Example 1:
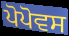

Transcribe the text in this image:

ਪੋਪੋਵਸ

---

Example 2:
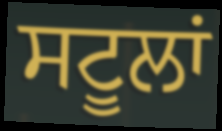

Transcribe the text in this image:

ਸਟੂਲਾਂ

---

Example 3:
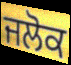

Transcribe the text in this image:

ਜਲੋਕ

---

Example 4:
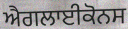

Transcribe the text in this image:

ਐਗਲਾਈਕੋਨਸ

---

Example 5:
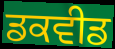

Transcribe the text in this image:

ਡਕਵੀਡ